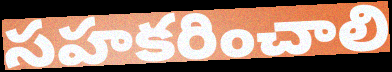
సహకరించాలి